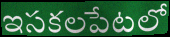
ఇసకలపేటలో